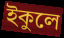
ইকুলে